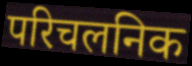
परिचलनिक